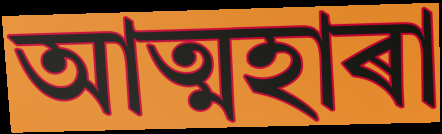
আত্মহাৰা